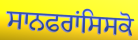
ਸਾਨਫਰਾਂਸਿਸਕੋ